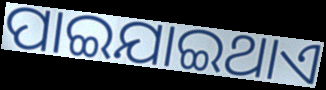
ପାଇଯାଇଥାଏ